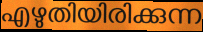
എഴുതിയിരിക്കുന്ന